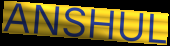
ANSHUL